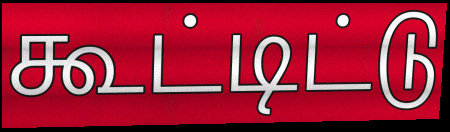
கூட்டிட்டு